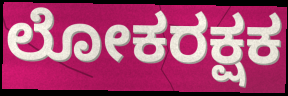
ಲೋಕರಕ್ಷಕ